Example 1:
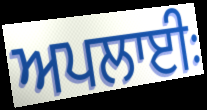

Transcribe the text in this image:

ਅਪਲਾਈਃ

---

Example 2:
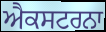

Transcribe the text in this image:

ਐਕਸਟਰਨਾ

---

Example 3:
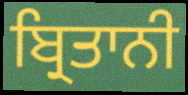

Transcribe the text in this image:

ਬ੍ਰਿਤਾਨੀ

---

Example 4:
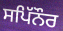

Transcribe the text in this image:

ਸਪਿੱਨੌਰ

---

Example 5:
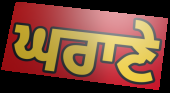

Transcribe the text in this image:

ਘਰਾਣੇ